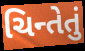
ચિન્તેતું